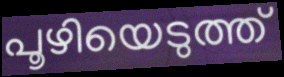
പൂഴിയെടുത്ത്